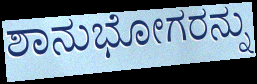
ಶಾನುಭೋಗರನ್ನು